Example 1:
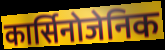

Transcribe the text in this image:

कार्सिनोजेनिक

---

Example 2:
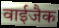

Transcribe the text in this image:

वाईजैक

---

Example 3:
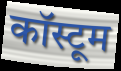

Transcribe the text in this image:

कॉस्टूम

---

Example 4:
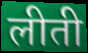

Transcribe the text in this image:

लीती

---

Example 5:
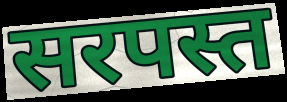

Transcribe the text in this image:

सरपस्त